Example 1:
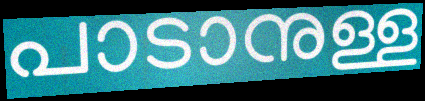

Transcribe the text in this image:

പാടാനുള്ള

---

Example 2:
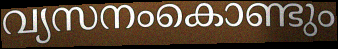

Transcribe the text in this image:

വ്യസനംകൊണ്ടും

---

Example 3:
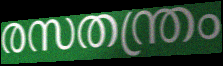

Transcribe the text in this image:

രസതന്ത്രം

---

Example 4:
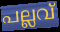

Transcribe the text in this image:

പല്ലവ്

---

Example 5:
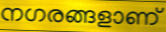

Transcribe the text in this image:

നഗരങ്ങളാണ്